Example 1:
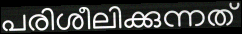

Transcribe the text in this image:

പരിശീലിക്കുന്നത്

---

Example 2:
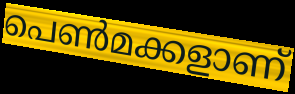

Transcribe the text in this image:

പെൺമക്കളാണ്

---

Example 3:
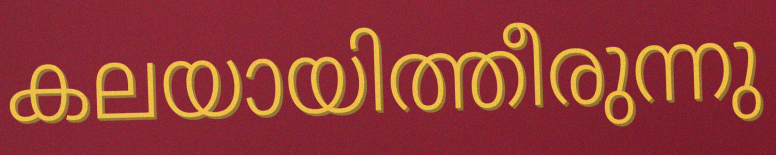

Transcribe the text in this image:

കലയായിത്തീരുന്നു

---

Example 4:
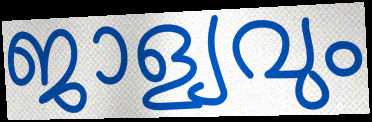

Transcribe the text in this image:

ജാള്യവും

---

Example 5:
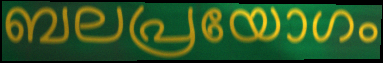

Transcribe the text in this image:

ബലപ്രയോഗം